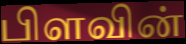
பிளவின்